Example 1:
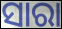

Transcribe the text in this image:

ସାରା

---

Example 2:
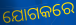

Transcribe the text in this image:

ଯୋଗକରେ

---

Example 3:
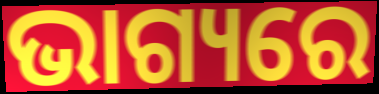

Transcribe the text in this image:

ଭାଗ୍ୟରେ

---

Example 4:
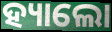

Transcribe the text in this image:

ହ୍ୟାଲୋ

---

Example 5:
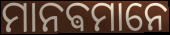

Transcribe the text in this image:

ମାନଵମାନେ